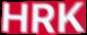
HRK